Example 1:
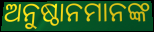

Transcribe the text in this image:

ଅନୁଷ୍ଠାନମାନଙ୍କ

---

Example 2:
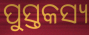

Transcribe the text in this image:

ପୁସ୍ତକସ୍ୟ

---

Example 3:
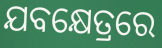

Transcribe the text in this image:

ଯବକ୍ଷେତ୍ରରେ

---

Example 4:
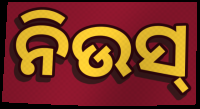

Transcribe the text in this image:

ନିଉସ୍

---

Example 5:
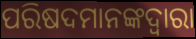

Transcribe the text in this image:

ପରିଷଦମାନଙ୍କଦ୍ୱାରା